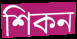
শিকন